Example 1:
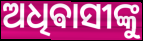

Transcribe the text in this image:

ଅଧିଵାସୀଙ୍କୁ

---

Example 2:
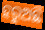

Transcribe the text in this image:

ହରୁଅଛି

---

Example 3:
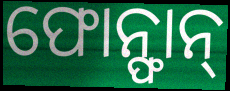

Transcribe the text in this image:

ଫୋନ୍ଫାନ୍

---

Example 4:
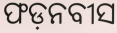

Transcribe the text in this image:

ଫଡ଼ନବୀସ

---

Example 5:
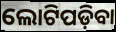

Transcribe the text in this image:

ଲୋଟିପଡ଼ିବା